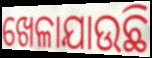
ଖେଳାଯାଉଛି